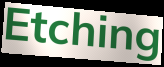
Etching